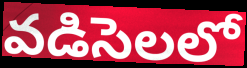
వడిసెలలో